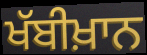
ਖੱਬੀਖ਼ਾਨ